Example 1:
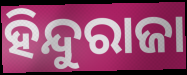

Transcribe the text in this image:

ହିନ୍ଦୁରାଜା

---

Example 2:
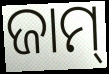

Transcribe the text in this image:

ଜାମ୍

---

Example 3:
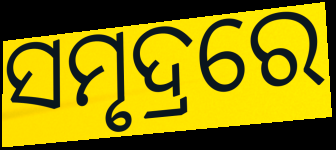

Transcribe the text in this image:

ସମୃଦ୍ରରେ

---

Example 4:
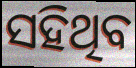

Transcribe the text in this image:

ସହିଥିବ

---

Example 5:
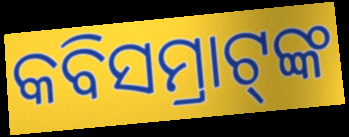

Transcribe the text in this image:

କବିସମ୍ରାଟ୍‌ଙ୍କ